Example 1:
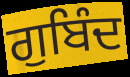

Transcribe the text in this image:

ਗੁਬਿੰਦ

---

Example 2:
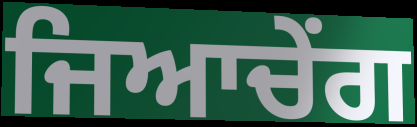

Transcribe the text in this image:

ਜਿਆਚੇਂਗ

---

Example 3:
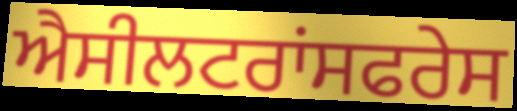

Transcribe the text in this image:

ਐਸੀਲਟਰਾਂਸਫਰੇਸ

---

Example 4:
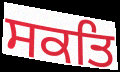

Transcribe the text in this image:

ਸਕਤਿ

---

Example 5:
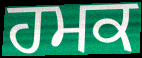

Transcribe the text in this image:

ਹਮਕ